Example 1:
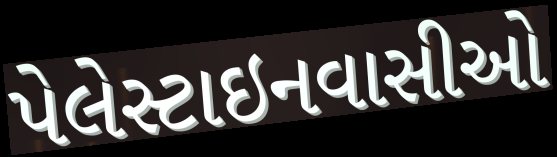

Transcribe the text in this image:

પેલેસ્ટાઇનવાસીઓ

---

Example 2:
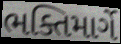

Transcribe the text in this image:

ભક્તિમાર્ગે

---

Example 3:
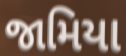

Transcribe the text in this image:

જામિયા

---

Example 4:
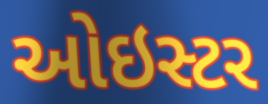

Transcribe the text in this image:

ઓઇસ્ટર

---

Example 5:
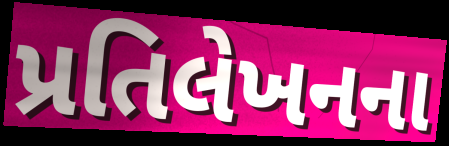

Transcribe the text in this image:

પ્રતિલેખનના